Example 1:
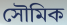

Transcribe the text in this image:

সৌমিক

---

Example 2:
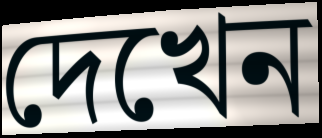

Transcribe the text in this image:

দেখেন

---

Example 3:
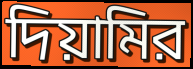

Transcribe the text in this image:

দিয়ামির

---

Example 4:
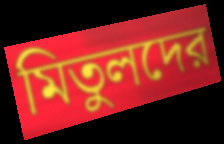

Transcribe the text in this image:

মিতুলদের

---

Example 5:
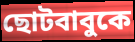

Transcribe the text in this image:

ছোটবাবুকে